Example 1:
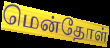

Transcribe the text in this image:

மென்தோள்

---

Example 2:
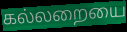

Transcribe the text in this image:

கல்லறையை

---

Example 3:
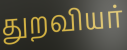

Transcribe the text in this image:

துறவியர்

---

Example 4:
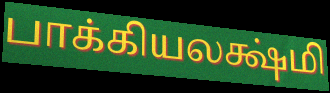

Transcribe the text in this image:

பாக்கியலக்ஷ்மி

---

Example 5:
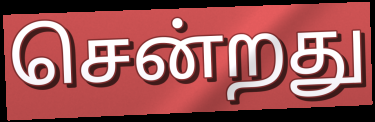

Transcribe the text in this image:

சென்றது